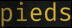
pieds